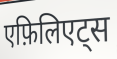
एफ़िलिएट्स